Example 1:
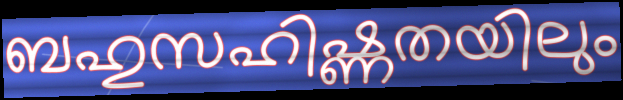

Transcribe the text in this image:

ബഹുസഹിഷ്ണതയിലും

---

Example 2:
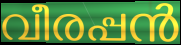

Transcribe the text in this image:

വീരപ്പൻ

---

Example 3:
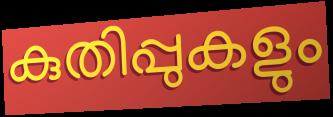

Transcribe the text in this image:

കുതിപ്പുകളും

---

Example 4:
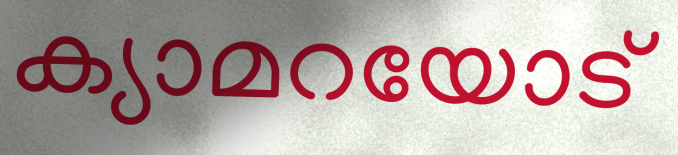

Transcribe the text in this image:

ക്യാമറയോട്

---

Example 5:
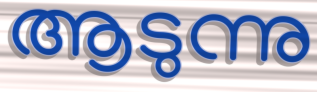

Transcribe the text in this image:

ആടുന്നു